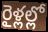
రైళ్లల్లో